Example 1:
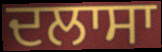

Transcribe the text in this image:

ਦਲਾਸਾ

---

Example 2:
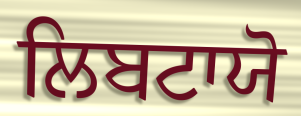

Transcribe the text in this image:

ਲਿਬਟਾਯੋ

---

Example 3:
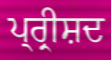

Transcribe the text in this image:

ਪ੍ਰ੍ਰੀਸ਼ਦ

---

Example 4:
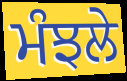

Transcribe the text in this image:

ਮੰਝਲੇ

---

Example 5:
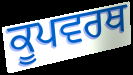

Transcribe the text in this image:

ਕੂਪਵਰਥ